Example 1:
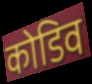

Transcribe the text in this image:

कोडिव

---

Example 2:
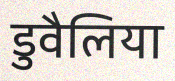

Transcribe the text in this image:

डुवैलिया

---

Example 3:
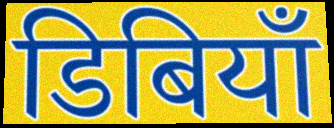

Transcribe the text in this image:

डिबियाँ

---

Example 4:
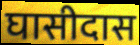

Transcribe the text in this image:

घासीदास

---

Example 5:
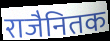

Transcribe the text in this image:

राजैनितक